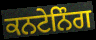
ਕਨਟੇਨਿੰਗ